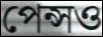
পেন্সও